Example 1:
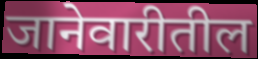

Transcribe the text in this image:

जानेवारीतील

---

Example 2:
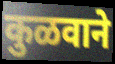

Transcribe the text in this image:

कुळवाने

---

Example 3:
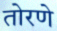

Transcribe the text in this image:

तोरणे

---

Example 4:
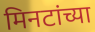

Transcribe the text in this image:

मिनटांच्या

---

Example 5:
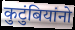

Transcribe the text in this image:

कुटुंबियांनो